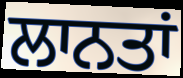
ਲਾਨਤਾਂ